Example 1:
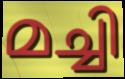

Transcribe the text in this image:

മച്ചി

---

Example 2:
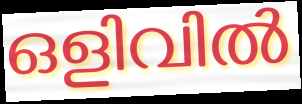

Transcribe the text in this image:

ഒളിവിൽ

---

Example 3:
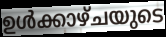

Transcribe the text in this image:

ഉൾക്കാഴ്ചയുടെ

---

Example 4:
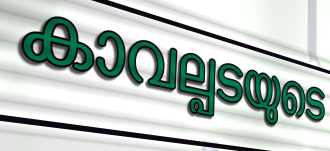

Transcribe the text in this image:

കാവല്പടയുടെ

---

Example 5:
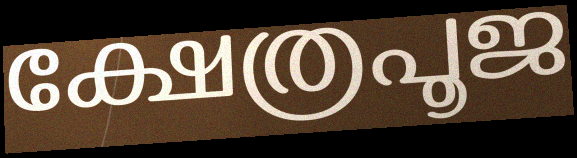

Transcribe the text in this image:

ക്ഷേത്രപൂജ